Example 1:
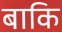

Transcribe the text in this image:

बाकि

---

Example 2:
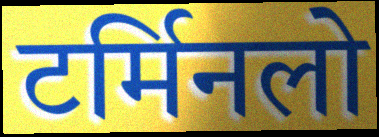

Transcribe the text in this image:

टर्मिनलो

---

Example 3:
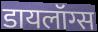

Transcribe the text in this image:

डायलॉग्स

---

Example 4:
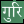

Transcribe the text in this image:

गुरि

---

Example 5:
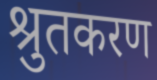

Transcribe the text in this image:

श्रुतकरण